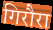
गिरौरा